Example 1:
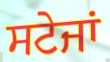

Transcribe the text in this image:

ਸਟੇਜਾਂ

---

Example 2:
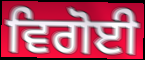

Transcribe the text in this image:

ਵਿਗੋਈ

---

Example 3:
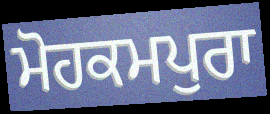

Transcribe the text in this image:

ਮੋਹਕਮਪੁਰਾ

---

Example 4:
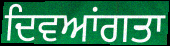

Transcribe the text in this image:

ਦਿਵਆਂਗਤਾ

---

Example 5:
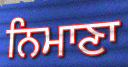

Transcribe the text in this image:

ਨਿਮਾਣਾ